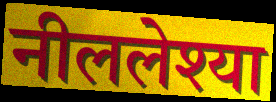
नीललेश्या